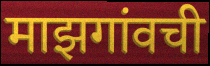
माझगांवची